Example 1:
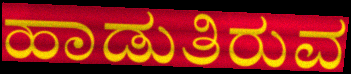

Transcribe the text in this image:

ಹಾಡುತಿರುವ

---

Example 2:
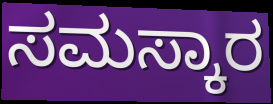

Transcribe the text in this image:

ಸಮಸ್ಕಾರ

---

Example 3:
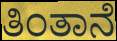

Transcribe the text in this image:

ತಿಂತಾನೆ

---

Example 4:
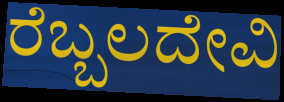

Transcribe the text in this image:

ರೆಬ್ಬಲದೇವಿ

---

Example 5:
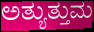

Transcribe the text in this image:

ಅತ್ಯುತ್ತುಮ